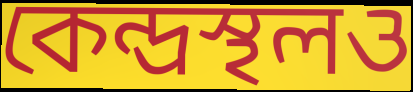
কেন্দ্রস্থলও